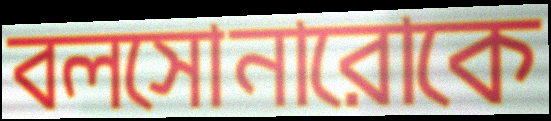
বলসোনারোকে